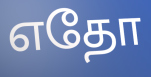
எதோ